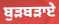
ਬੁੜਬੜਾਏ